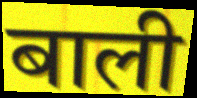
बाली